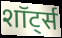
शॉर्ट्स